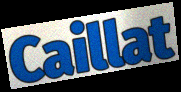
Caillat